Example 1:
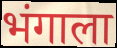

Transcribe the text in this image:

भंगाला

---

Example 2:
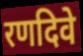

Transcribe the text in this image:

रणदिवे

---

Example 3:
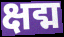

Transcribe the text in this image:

क्षद्म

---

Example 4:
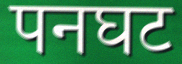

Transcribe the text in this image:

पनघट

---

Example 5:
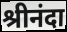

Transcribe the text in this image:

श्रीनंदा